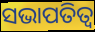
ସଭାପତିତ୍ଵ